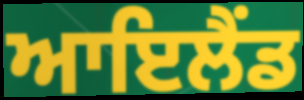
ਆਇਲੈੰਡ